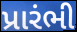
પ્રારંભી